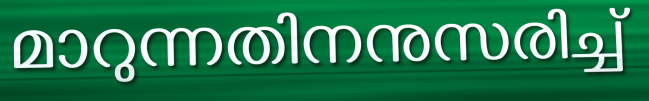
മാറുന്നതിനനുസരിച്ച്